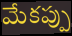
మేకప్పు